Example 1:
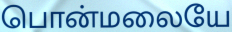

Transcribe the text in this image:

பொன்மலையே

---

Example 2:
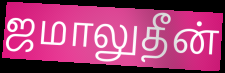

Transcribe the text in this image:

ஜமாலுதீன்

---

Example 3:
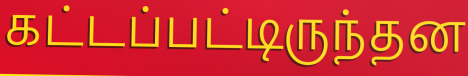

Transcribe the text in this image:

கட்டப்பட்டிருந்தன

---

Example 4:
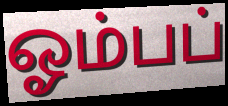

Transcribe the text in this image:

ஓம்பப்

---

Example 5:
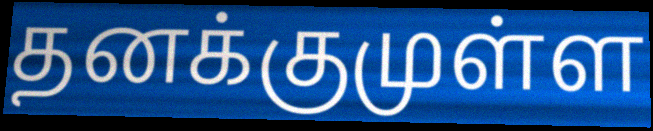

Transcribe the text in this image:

தனக்குமுள்ள